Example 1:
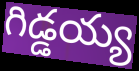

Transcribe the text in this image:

గిడ్డయ్య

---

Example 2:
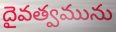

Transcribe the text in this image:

దైవత్వమును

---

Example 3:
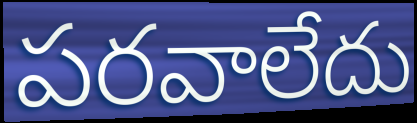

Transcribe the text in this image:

పరవాలేదు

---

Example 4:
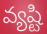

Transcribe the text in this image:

వ్యష్టి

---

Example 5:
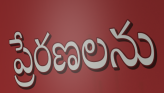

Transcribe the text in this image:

ప్రేరణలను